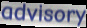
advisory